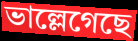
ভাল্লেগেছে